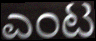
ಎಂಟ